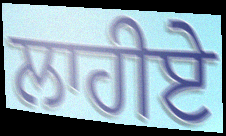
ਲਾਹੀਏ